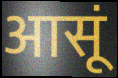
आसूं